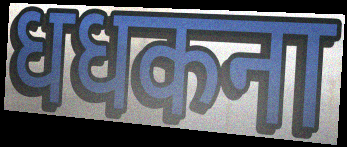
धधकना